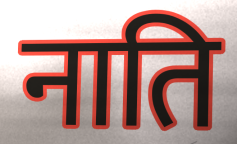
नाति